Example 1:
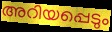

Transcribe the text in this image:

അറിയപ്പെടും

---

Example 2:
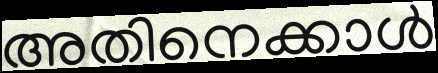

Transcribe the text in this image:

അതിനെക്കാൾ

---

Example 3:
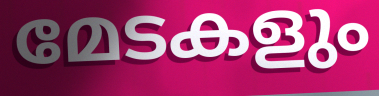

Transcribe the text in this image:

മേടകളും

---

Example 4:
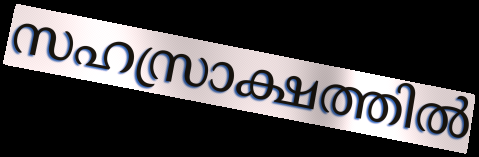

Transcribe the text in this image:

സഹസ്രാക്ഷത്തിൽ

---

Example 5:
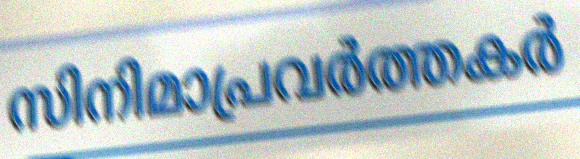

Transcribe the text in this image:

സിനിമാപ്രവർത്തകർ